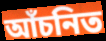
আঁচনিত